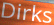
Dirks